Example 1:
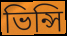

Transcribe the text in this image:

ভিন্সি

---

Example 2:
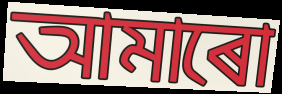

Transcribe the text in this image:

আমাৰো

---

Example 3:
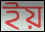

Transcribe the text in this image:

ইয়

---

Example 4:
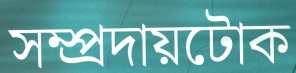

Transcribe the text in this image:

সম্প্ৰদায়টোক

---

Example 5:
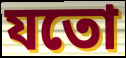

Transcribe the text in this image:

যতো